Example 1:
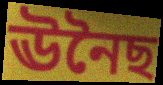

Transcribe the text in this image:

ঊনৈছ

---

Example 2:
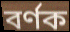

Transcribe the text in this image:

বৰ্ণক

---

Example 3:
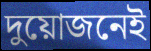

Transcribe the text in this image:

দুয়োজনেই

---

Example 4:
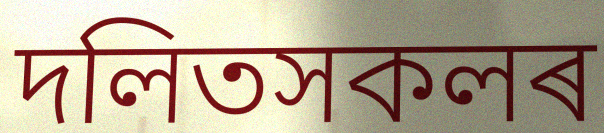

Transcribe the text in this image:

দলিতসকলৰ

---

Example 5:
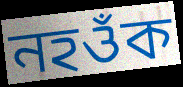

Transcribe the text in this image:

নহওঁক